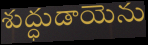
శుద్ధుడాయెను